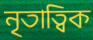
নৃতাত্বিক